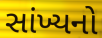
સાંખ્યનો